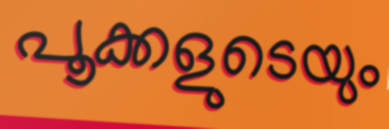
പൂക്കളുടെയും